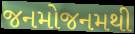
જનમોજનમથી